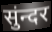
सुंन्दर